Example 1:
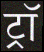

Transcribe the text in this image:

ट्रॉ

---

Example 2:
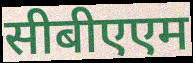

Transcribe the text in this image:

सीबीएएम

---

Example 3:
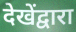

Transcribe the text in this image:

देखेंद्वारा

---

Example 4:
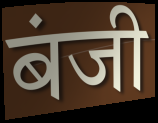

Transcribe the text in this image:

बंजी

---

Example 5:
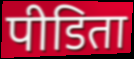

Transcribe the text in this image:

पीडिता